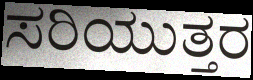
ಸರಿಯುತ್ತರ